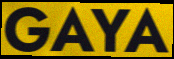
GAYA